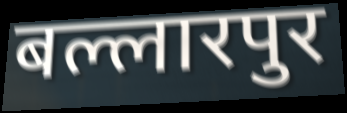
बल्लारपुर